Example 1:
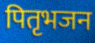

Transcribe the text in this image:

पितृभजन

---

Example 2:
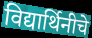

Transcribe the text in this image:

विद्यार्थिनीचे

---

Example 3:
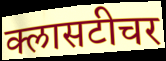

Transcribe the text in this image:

क्लासटीचर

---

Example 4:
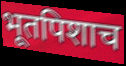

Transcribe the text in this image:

भूतपिशाच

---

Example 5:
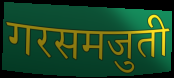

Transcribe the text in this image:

गरसमजुती